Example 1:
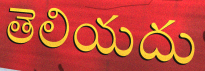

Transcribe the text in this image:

తెలియదు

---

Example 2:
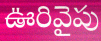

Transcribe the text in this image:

ఊరివైపు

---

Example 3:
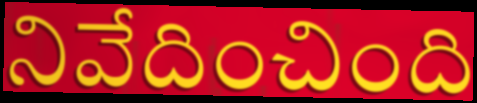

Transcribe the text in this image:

నివేదించింది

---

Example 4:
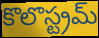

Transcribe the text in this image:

కొలొస్ట్రమ్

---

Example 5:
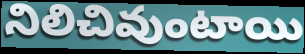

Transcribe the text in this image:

నిలిచివుంటాయి